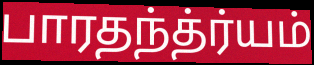
பாரதந்த்ர்யம்